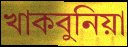
খাকবুনিয়া